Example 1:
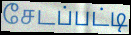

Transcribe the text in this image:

சேடப்பட்டி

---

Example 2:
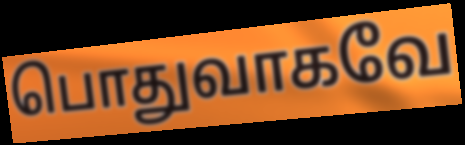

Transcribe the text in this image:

பொதுவாகவே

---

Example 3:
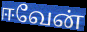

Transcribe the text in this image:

ஈவேன்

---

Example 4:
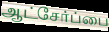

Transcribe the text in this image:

ஆட்சேர்ப்பை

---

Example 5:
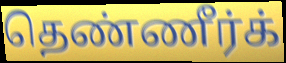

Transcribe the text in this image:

தெண்ணீர்க்